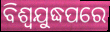
ବିଶ୍ୱଯୁଦ୍ଧପରେ